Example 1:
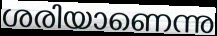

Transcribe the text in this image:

ശരിയാണെന്നു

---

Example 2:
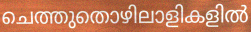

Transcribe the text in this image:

ചെത്തുതൊഴിലാളികളിൽ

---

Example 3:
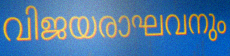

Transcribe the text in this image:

വിജയരാഘവനും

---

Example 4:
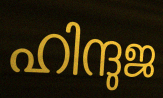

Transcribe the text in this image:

ഹിന്ദുജ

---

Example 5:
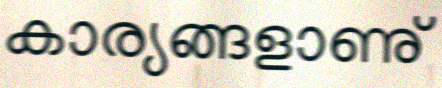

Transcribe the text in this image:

കാര്യങ്ങളാണു്